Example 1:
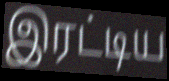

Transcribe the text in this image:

இரட்டிய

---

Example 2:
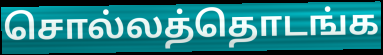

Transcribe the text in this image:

சொல்லத்தொடங்க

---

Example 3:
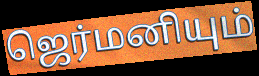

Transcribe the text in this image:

ஜெர்மனியும்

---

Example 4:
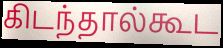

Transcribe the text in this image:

கிடந்தால்கூட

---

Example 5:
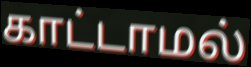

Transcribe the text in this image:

காட்டாமல்